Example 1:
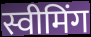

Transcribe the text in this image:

स्वीमिंग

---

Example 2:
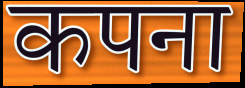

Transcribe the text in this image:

कपना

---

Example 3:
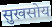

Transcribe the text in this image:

सुखसोय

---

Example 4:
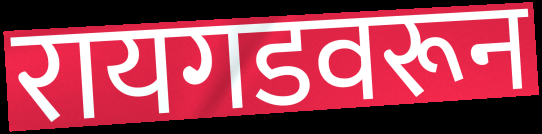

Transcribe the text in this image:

रायगडवरून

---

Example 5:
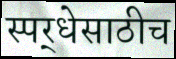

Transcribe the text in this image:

स्पर्धेसाठीच